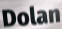
Dolan